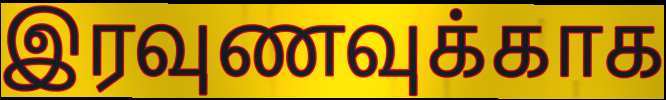
இரவுணவுக்காக